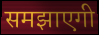
समझाएगी